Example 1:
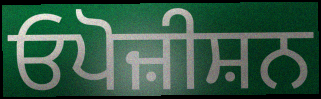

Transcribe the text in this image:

ਓਪੋਜ਼ੀਸ਼ਨ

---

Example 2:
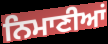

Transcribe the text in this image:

ਨਿਮਾਣੀਆਂ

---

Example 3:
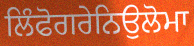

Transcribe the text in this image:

ਲਿੰਫੋਗਰੇਨਿਉਲੋਮਾ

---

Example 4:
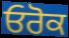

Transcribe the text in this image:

ਓਰੋਕ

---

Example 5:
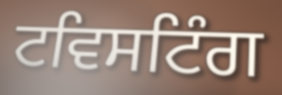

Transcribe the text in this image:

ਟਵਿਸਟਿੰਗ